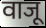
वाजू